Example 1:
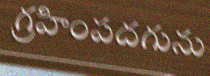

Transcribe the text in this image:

గ్రహింపదగును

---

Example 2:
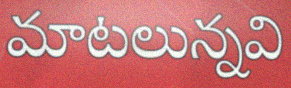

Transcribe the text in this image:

మాటలున్నవి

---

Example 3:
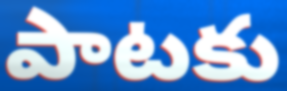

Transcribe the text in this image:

పాటకు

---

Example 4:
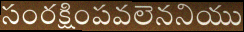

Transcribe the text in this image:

సంరక్షింపవలెననియు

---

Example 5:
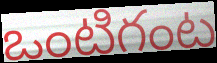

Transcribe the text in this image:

ఒంటిగంట